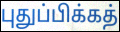
புதுப்பிக்கத்